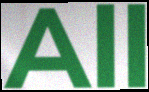
All